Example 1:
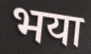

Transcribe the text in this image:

भया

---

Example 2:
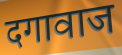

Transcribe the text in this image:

दगावाज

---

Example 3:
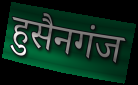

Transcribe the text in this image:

हुसैनगंज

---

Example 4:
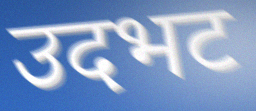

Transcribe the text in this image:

उदभट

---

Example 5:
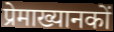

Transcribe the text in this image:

प्रेमाख्यानकों